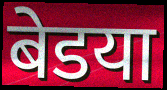
बेडया